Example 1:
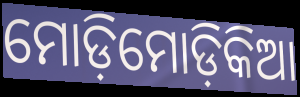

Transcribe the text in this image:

ମୋଡ଼ିମୋଡ଼ିକିଆ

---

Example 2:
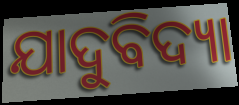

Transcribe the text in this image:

ଯାଦୁବିଦ୍ୟା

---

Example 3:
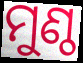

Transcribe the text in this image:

ମୁଣ୍ଠ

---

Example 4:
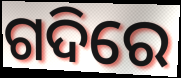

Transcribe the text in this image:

ଗଦିରେ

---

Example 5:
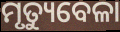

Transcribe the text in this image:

ମୃତ୍ୟୁବେଳା